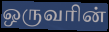
ஒருவரின்